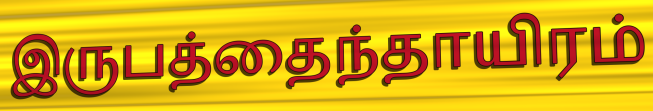
இருபத்தைந்தாயிரம்